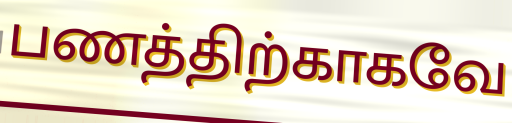
பணத்திற்காகவே